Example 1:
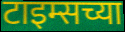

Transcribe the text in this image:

टाइम्सच्या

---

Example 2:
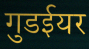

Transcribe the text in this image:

गुडईयर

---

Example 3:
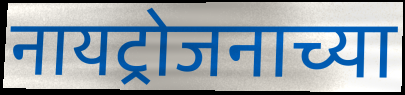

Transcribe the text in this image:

नायट्रोजनाच्या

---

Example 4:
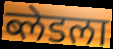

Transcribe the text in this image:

ब्लेडला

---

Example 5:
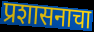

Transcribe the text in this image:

प्रशासनाचा